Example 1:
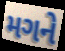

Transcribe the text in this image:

મગને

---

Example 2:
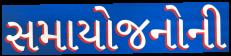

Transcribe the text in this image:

સમાયોજનોની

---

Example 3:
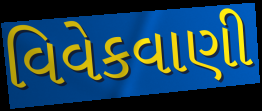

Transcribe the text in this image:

વિવેકવાણી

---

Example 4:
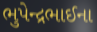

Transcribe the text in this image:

ભુપેન્દ્રભાઈના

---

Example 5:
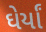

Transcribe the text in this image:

ઘેર્યાં